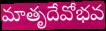
మాతృదేవోభవ